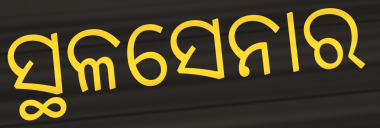
ସ୍ଥଳସେନାର